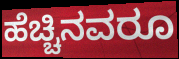
ಹೆಚ್ಚಿನವರೂ